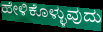
ಹೇಳಿಕೊಳ್ಳುವುದು